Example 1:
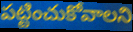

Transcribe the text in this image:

పట్టించుకోవాలని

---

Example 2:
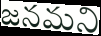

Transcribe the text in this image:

జనమని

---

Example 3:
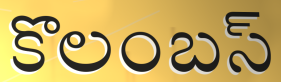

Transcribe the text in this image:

కొలంబస్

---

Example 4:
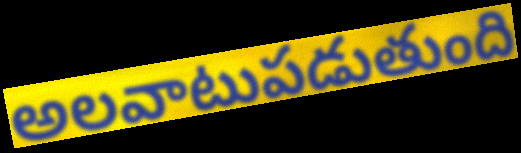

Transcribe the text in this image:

అలవాటుపడుతుంది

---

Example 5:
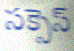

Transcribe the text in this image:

సక్సెస్